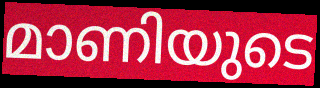
മാണിയുടെ